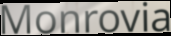
Monrovia